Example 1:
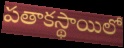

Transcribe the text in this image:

పతాకస్థాయిలో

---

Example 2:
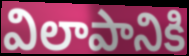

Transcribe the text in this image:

విలాపానికి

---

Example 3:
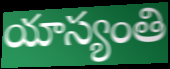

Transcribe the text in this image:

యాస్యంతి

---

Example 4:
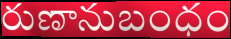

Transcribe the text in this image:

రుణానుబంధం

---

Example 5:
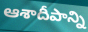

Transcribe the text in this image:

ఆశాదీపాన్ని